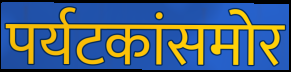
पर्यटकांसमोर